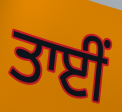
ਤਾਈਂ